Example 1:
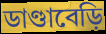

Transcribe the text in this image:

ডাণ্ডাবেড়ি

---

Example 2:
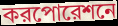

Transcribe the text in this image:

করপোরেশনে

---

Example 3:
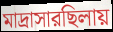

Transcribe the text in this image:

মাদ্রাসারছিলায়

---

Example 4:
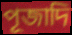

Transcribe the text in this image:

পূজাদি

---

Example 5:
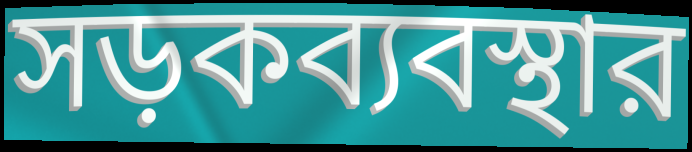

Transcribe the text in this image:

সড়কব্যবস্থার